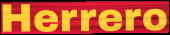
Herrero